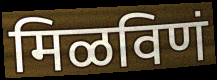
मिळविणं